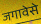
जगावेसे